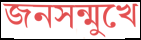
জনসন্মুখে